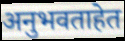
अनुभवताहेत